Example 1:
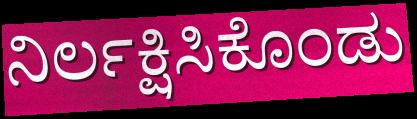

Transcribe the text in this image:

ನಿರ್ಲಕ್ಷಿಸಿಕೊಂಡು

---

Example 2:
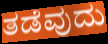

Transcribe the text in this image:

ತಡೆವುದು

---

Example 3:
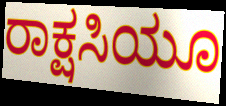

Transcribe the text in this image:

ರಾಕ್ಷಸಿಯೂ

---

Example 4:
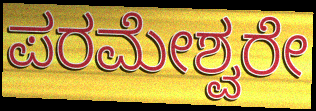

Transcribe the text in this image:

ಪರಮೇಶ್ವರೇ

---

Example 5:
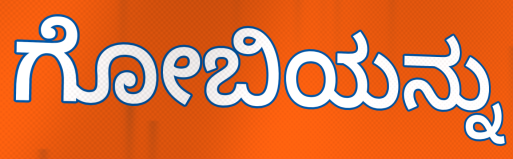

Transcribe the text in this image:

ಗೋಬಿಯನ್ನು